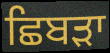
ਛਿਬੜਾ